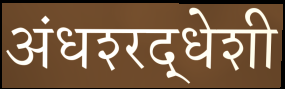
अंधश्रद्धेशी